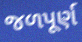
જળપૂર્ણ